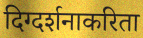
दिग्दर्शनाकरिता